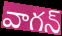
వాగన్